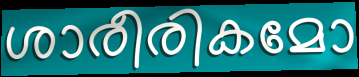
ശാരീരികമോ